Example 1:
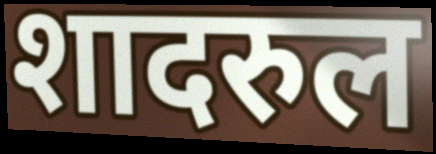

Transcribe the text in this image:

शादरुल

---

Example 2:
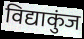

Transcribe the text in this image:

विद्याकुंज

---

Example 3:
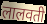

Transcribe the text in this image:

लालवती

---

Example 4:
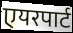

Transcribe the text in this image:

एयरपार्ट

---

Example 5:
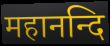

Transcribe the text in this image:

महानन्दि